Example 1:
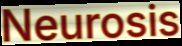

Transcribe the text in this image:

Neurosis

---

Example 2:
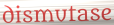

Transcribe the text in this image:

dismutase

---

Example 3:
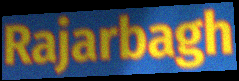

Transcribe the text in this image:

Rajarbagh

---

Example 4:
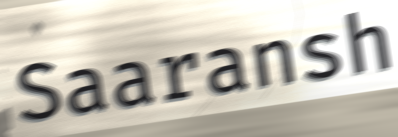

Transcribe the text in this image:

Saaransh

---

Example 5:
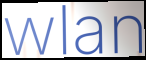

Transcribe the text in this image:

wlan